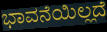
ಭಾವನೆಯಿಲ್ಲದೆ